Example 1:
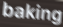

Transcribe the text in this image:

baking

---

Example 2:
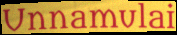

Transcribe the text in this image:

Unnamulai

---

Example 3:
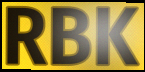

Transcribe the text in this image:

RBK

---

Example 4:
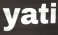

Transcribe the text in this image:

yati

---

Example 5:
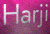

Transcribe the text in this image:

Harji